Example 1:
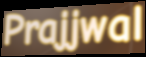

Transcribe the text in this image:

Prajjwal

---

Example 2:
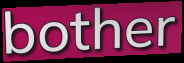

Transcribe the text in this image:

bother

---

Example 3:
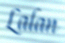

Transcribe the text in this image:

Lalan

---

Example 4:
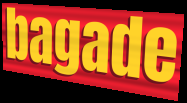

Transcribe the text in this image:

bagade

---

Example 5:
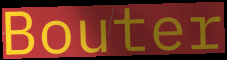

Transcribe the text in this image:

Bouter